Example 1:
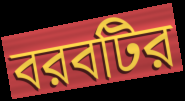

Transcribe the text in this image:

বরবটির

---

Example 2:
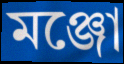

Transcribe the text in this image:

মঞ্জো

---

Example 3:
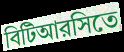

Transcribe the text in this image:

বিটিআরসিতে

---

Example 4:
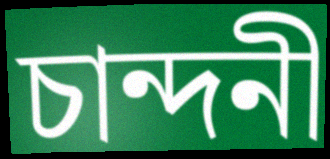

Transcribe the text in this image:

চান্দনী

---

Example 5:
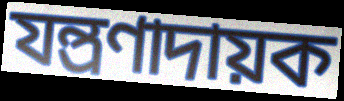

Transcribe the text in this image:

যন্ত্রণাদায়ক